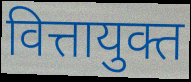
वित्तायुक्त